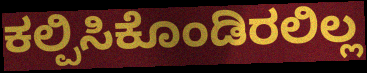
ಕಲ್ಪಿಸಿಕೊಂಡಿರಲಿಲ್ಲ